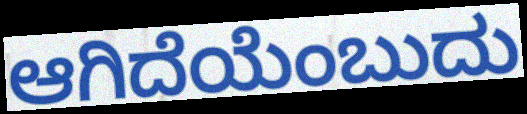
ಆಗಿದೆಯೆಂಬುದು